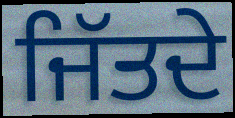
ਜਿੱਤਦੇ